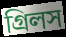
গ্রিলস